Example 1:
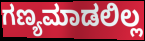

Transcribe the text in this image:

ಗಣ್ಯಮಾಡಲಿಲ್ಲ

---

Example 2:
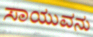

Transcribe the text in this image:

ಸಾಯುವನು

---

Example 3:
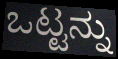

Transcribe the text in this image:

ಒಟ್ಟನ್ನು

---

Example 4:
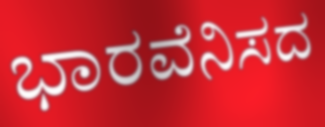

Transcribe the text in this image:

ಭಾರವೆನಿಸದ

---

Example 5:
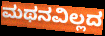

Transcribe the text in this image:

ಮಥನವಿಲ್ಲದ